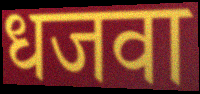
धजवा